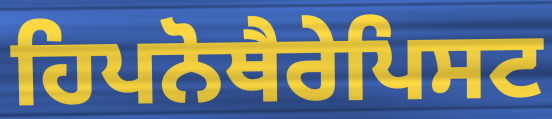
ਹਿਪਨੋਥੈਰੇਪਿਸਟ